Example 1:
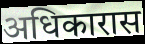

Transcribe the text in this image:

अधिकारास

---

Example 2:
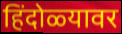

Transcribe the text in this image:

हिंदोळ्यावर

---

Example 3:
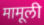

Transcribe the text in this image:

मामूली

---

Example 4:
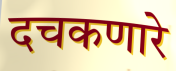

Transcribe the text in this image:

दचकणारे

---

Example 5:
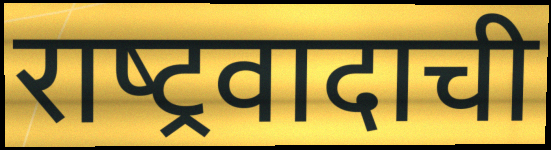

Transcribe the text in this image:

राष्ट्रवादाची